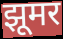
झूमर